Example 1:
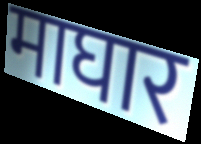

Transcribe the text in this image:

माघार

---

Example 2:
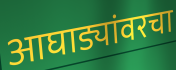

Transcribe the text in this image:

आघाड्यांवरचा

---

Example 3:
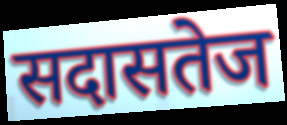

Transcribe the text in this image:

सदासतेज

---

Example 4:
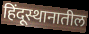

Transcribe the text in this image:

हिंदूस्थानातील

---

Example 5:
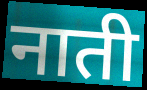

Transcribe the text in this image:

नाती